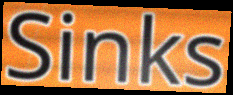
Sinks